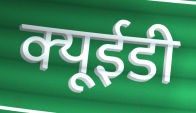
क्यूईडी